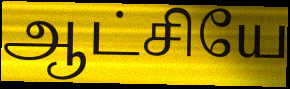
ஆட்சியே